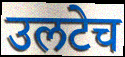
उलटेच